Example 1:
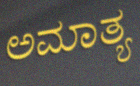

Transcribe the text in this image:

ಅಮಾತ್ಯ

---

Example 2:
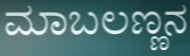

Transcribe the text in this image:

ಮಾಬಲಣ್ಣನ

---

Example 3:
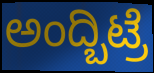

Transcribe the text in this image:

ಅಂದ್ಬಿಟ್ರೆ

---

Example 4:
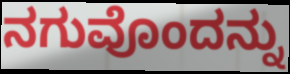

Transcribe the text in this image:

ನಗುವೊಂದನ್ನು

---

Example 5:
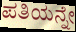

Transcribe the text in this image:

ಪತಿಯನ್ನೇ